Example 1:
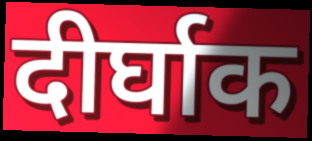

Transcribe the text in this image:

दीर्घाक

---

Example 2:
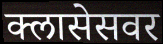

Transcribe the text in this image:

क्लासेसवर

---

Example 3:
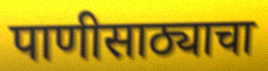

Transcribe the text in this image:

पाणीसाठ्याचा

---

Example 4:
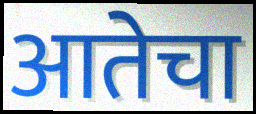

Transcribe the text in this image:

आतेचा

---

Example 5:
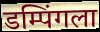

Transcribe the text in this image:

डम्पिंगला